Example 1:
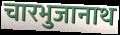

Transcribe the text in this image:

चारभुजानाथ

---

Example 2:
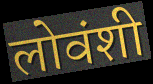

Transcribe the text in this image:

लोवंशी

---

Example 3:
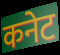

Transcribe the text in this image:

कनेट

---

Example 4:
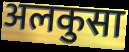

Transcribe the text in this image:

अलकुसा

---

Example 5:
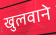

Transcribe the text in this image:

खुलवाने